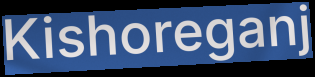
Kishoreganj